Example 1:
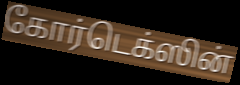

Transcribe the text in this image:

கோர்டெக்ஸின்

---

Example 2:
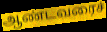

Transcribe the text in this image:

ஆண்டவரைச்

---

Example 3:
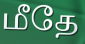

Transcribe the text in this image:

மீதே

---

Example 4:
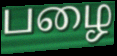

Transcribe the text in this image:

பழை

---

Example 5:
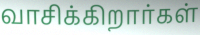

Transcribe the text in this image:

வாசிக்கிறார்கள்